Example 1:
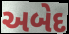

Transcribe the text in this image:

અબેદ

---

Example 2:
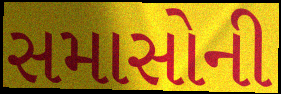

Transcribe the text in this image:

સમાસોની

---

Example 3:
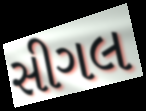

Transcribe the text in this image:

સીગલ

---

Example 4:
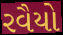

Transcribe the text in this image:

રવૈયો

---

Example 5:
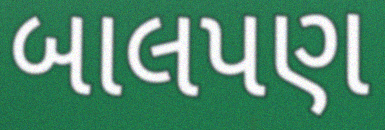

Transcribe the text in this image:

બાલપણ